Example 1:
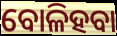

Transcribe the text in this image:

ବୋଳିହବା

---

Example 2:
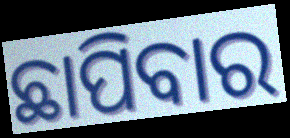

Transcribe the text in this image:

ଛାପିବାର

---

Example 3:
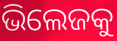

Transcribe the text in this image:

ଭିଲେଜକୁ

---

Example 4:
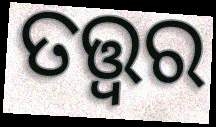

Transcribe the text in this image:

ତତ୍ତ୍ବର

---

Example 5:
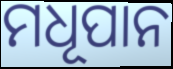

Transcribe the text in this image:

ମଧୂପାନ